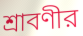
শ্রাবণীর